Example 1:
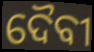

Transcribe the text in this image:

ଦୈବୀ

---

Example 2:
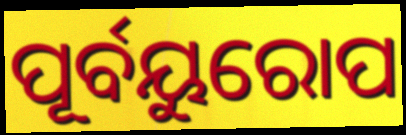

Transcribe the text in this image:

ପୂର୍ବୟୁରୋପ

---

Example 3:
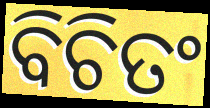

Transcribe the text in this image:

ବିଚିତଂ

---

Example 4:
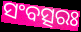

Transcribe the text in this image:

ସଂବତ୍ସରଃ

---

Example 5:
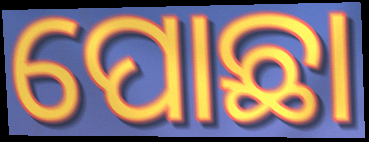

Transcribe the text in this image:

ପୋଛା